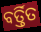
ବର୍ତ୍ତିତ